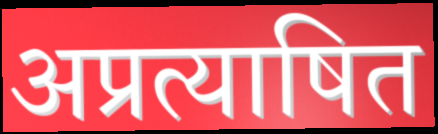
अप्रत्याषित